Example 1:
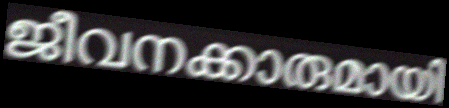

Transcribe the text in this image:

ജീവനക്കാരുമായി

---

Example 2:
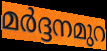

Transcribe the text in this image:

മർദ്ദനമുറ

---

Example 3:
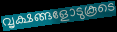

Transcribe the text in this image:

വൃക്ഷങ്ങളോടുകൂടെ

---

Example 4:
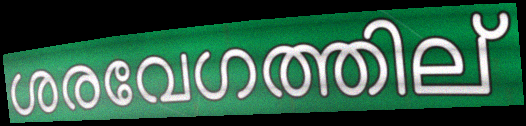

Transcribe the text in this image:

ശരവേഗത്തില്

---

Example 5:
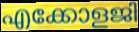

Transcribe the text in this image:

എക്കോളജി